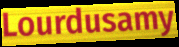
Lourdusamy